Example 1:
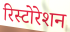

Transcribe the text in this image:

रिस्टोरेशन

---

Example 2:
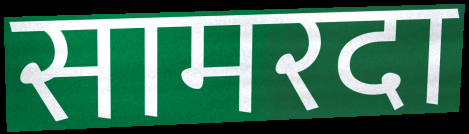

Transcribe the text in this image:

सामरदा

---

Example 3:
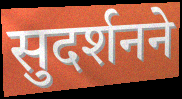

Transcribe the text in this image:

सुदर्शनने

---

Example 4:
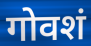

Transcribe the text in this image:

गोवशं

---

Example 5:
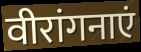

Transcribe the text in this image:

वीरांगनाएं